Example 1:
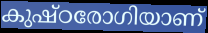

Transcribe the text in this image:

കുഷ്ഠരോഗിയാണ്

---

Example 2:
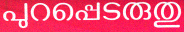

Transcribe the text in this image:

പുറപ്പെടരുതു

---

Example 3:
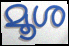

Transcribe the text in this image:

മൂശ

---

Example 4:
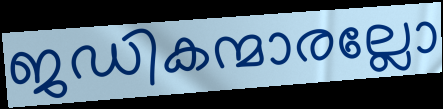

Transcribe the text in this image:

ജഡികന്മാരല്ലോ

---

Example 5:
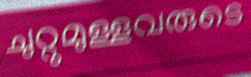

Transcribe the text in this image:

ചുറ്റുമുള്ളവരുടെ